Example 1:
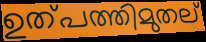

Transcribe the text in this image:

ഉത്പത്തിമുതല്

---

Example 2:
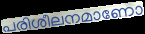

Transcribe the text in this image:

പരിശീലനമാണോ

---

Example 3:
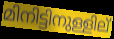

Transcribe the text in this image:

മിനിട്ടിനുള്ളില്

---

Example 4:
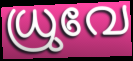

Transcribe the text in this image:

ധ്രുവേ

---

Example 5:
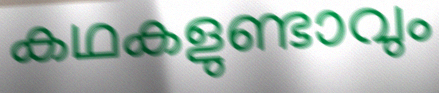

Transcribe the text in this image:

കഥകളുണ്ടാവും